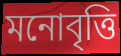
মনোবৃত্তি